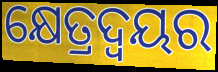
କ୍ଷେତ୍ରଦ୍ୱୟର